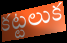
కట్టలుక